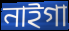
নাইগা